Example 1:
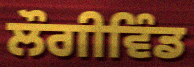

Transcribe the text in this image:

ਲੌਗੀਵਿੰਡ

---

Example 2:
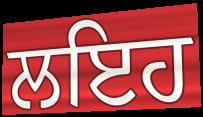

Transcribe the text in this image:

ਲਇਹ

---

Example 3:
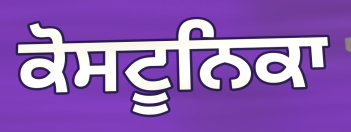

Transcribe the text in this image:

ਕੋਸਟੂਨਿਕਾ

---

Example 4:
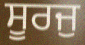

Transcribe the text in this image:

ਸੂਰਜੁ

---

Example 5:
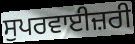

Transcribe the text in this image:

ਸੁਪਰਵਾਈਜ਼ਰੀ